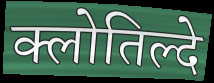
क्लोतिल्दे